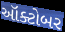
ઑક્ટોબર